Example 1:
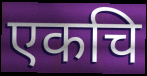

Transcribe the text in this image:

एकचि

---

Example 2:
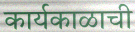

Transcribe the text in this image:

कार्यकाळाची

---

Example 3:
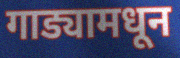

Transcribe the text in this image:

गाड्यामधून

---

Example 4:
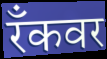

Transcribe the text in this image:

रँकवर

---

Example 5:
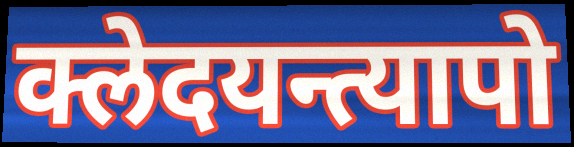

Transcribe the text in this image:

क्लेदयन्त्यापो